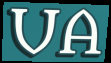
UA